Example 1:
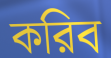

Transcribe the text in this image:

করিব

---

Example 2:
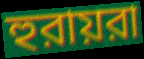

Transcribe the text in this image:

হুরায়রা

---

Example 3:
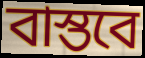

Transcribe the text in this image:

বাস্তবে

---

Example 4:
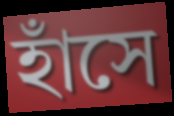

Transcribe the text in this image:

হাঁসে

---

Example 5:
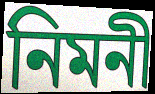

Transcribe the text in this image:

নিমনী